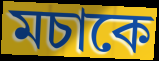
মচাকে